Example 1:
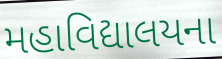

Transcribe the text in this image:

મહાવિદ્યાલયના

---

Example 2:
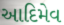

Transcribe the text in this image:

આદિમેવ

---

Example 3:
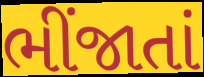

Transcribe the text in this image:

ભીંજાતાં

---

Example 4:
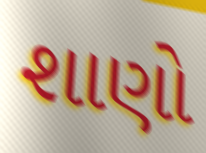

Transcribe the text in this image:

શાણો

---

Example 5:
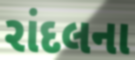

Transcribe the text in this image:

રાંદલના